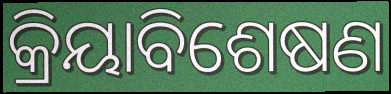
କ୍ରିୟାବିଶେଷଣ